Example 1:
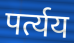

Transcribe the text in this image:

पर्त्यय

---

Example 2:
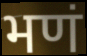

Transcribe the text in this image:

भणं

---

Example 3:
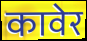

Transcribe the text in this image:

कावेर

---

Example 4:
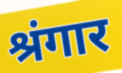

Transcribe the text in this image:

श्रंगार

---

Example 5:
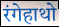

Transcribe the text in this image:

रंगेहाथो